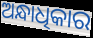
ଅନ୍ଧାଧିକାର